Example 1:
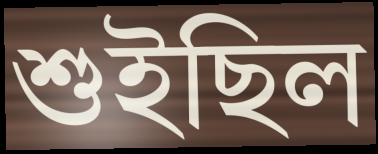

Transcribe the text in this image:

শুইছিল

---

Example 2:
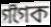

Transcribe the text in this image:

গগৈক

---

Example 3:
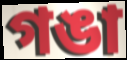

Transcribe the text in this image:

গঙা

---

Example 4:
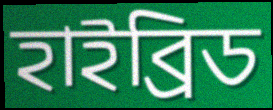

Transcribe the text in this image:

হাইব্ৰিড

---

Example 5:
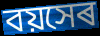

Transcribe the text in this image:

বয়সেৰ